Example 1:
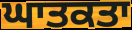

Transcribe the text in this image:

ਘਾਤਕਤਾ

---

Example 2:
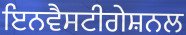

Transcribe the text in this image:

ਇਨਵੈਸਟੀਗੇਸ਼ਨਲ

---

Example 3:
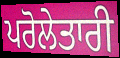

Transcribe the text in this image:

ਪਰੋਲੇਤਾਰੀ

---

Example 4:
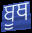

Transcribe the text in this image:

ਬੂਥ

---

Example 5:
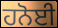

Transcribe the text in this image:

ਹਨੋਈ